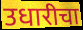
उधारीचा